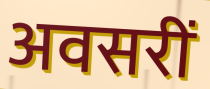
अवसरीं